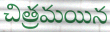
చిత్రమయిన